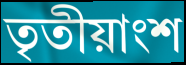
তৃতীয়াংশ